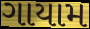
ગાયામ